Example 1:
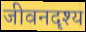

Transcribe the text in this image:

जीवनदृश्य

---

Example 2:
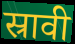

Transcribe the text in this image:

स्रावी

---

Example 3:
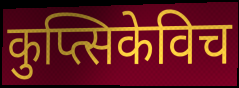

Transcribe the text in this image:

कुप्त्सिकेविच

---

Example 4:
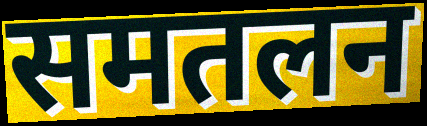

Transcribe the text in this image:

समतलन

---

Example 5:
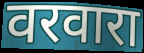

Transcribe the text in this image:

वरवारा